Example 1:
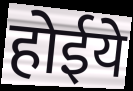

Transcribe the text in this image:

होईये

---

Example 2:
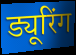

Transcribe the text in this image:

ड्यूरिंग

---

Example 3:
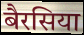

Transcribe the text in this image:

बैरसिया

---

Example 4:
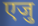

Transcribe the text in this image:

एजु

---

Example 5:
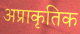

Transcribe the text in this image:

अप्राकृतिक